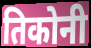
तिकोनी